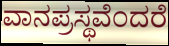
ವಾನಪ್ರಸ್ಥವೆಂದರೆ